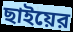
ছাইয়ের